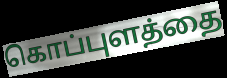
கொப்புளத்தை